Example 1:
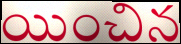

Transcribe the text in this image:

యించిన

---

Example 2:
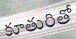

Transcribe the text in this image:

కూతురితో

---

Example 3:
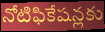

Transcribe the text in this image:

నోటిఫికేషన్లకు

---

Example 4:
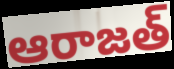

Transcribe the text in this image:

ఆరాజత్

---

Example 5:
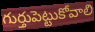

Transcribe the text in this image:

గుర్తుపెట్టుకోవాలి